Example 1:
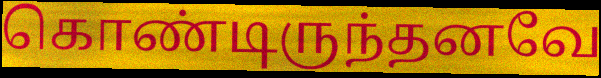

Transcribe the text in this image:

கொண்டிருந்தனவே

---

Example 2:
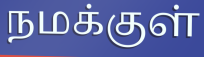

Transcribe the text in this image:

நமக்குள்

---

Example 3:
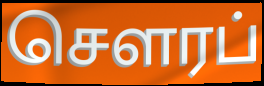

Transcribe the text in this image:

செளரப்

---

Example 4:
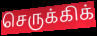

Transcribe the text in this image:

செருக்கிக்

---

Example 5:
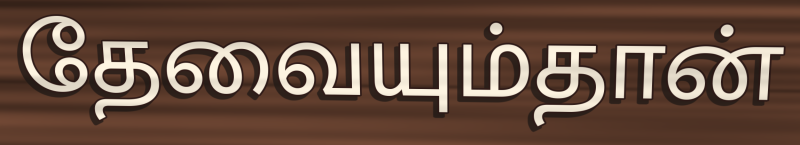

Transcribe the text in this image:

தேவையும்தான்